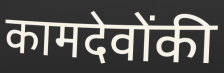
कामदेवोंकी